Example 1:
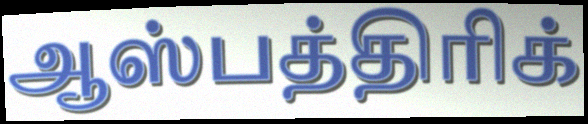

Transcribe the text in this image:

ஆஸ்பத்திரிக்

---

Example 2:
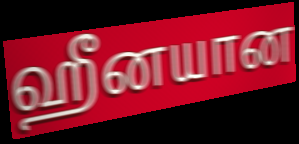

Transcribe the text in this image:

ஹீனயான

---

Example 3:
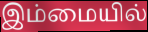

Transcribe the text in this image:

இம்மையில்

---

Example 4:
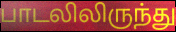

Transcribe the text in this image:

பாடலிலிருந்து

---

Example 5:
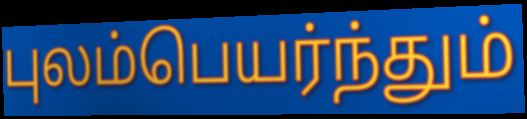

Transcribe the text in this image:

புலம்பெயர்ந்தும்